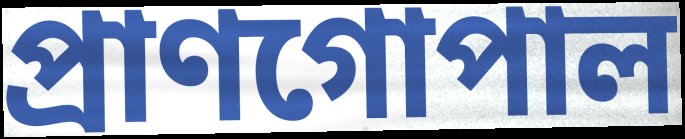
প্রাণগোপাল